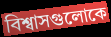
বিশ্বাসগুলোকে